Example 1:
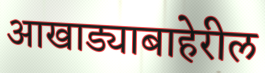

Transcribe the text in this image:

आखाड्याबाहेरील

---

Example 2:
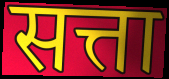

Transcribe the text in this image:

सत्ता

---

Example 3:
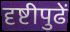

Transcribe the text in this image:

दृष्टीपुढें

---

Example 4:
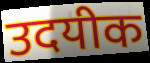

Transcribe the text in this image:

उदयीक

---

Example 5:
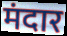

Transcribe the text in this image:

मंदार